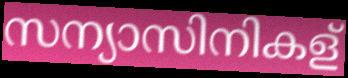
സന്യാസിനികള്